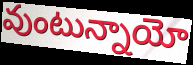
వుంటున్నాయో